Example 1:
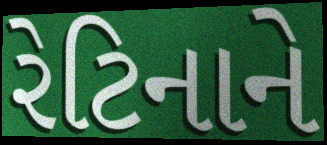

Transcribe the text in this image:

રેટિનાને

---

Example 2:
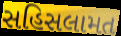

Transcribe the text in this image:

સહિસલામત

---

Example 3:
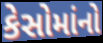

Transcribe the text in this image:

કેસોમાંનો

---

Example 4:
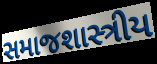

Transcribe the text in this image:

સમાજશાસ્ત્રીય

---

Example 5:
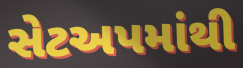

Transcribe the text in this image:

સેટઅપમાંથી